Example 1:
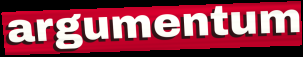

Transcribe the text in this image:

argumentum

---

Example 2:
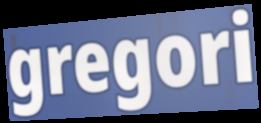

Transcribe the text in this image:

gregori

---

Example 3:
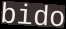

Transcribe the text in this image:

bido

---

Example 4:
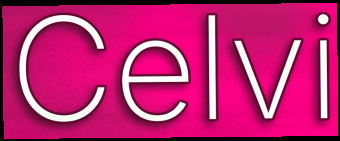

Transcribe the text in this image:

Celvi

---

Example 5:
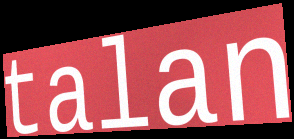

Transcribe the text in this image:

talan